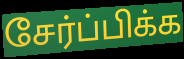
சேர்ப்பிக்க